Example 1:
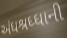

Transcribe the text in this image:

અંધશ્રધ્ધાની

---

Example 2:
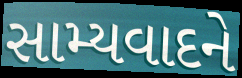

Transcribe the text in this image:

સામ્યવાદને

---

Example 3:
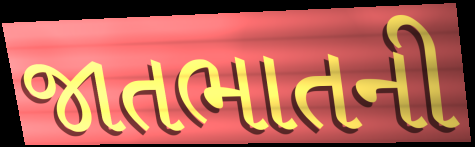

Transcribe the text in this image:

જાતભાતની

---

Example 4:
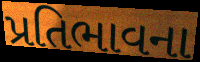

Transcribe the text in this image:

પ્રતિભાવના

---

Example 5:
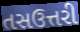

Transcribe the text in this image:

તસઉત્તરી